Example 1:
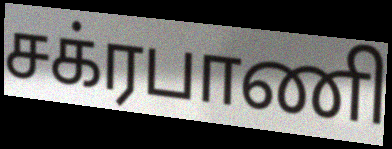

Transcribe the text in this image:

சக்ரபாணி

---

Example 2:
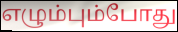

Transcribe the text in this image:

எழும்பும்போது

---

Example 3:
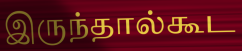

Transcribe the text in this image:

இருந்தால்கூட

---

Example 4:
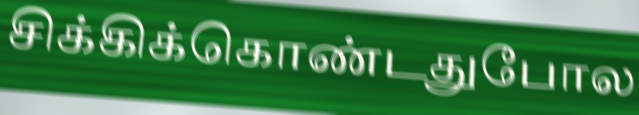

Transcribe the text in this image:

சிக்கிக்கொண்டதுபோல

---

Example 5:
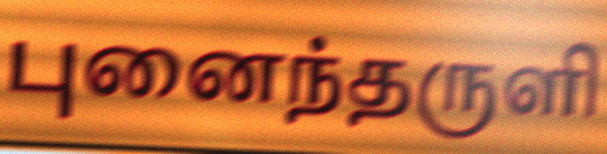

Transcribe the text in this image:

புனைந்தருளி